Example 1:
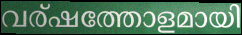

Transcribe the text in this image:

വര്ഷത്തോളമായി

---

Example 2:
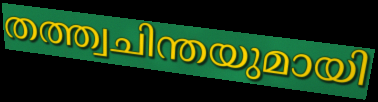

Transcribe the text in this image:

തത്ത്വചിന്തയുമായി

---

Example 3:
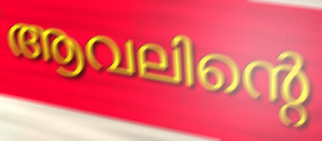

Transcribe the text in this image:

ആവലിന്റെ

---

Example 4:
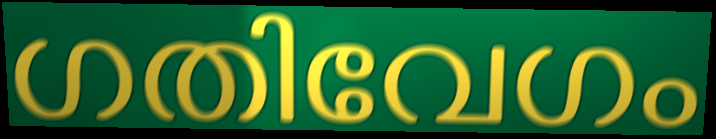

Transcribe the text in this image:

ഗതിവേഗം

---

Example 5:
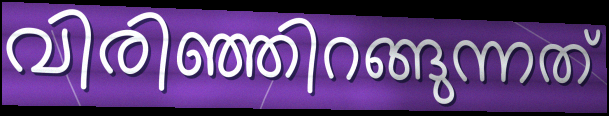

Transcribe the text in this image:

വിരിഞ്ഞിറങ്ങുന്നത്